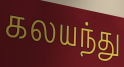
கலயந்து